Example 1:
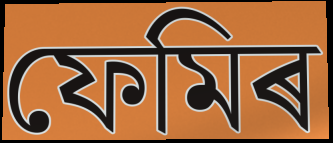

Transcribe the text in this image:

ফেমিৰ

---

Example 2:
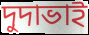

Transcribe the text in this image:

দুদাভাই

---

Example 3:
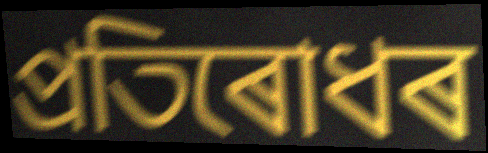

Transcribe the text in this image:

প্ৰতিৰোধৰ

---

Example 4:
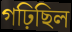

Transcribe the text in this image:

গঢ়িছিল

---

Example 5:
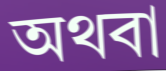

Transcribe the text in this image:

অথবা